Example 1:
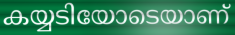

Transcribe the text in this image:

കയ്യടിയോടെയാണ്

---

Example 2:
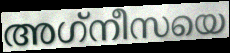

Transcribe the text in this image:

അഗ്‌നീസയെ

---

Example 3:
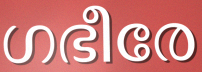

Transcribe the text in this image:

ഗഭീരേ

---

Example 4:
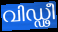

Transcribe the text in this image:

വിഡ്ഢീ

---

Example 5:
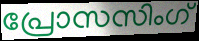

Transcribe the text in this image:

പ്രോസസിംഗ്